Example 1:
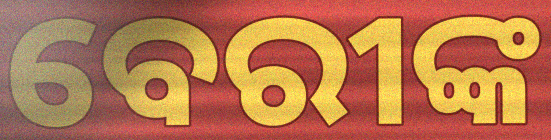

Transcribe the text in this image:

ବେରୀଙ୍କ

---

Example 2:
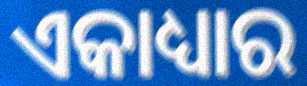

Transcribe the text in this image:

ଏକାଧ୍ୟାର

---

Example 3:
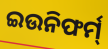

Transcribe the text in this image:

ଇଉନିଫର୍ମ୍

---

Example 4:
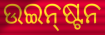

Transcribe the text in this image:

ଉଇନ୍‌ଷ୍ଟନ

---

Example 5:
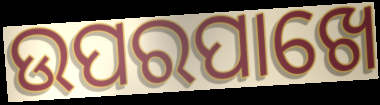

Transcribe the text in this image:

ଉପରପାଖେ